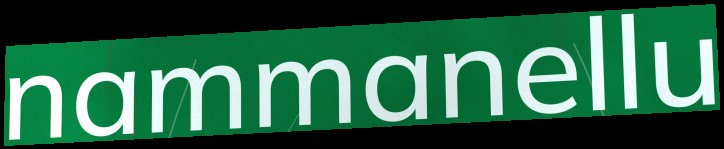
nammanellu